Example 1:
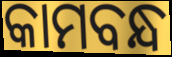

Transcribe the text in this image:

କାମବନ୍ଧ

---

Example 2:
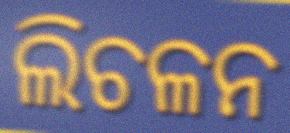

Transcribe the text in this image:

ଲିଚଳନ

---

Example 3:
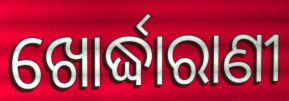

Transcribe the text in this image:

ଖୋର୍ଦ୍ଧାରାଣୀ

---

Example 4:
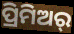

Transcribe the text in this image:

ପ୍ରିମିଅର୍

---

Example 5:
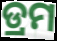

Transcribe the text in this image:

ଡ୍ରମ